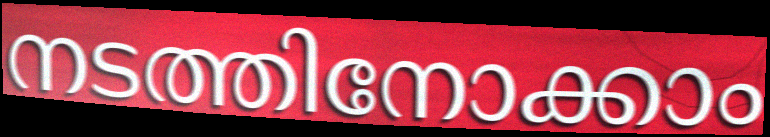
നടത്തിനോക്കാം